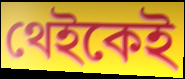
থেইকেই